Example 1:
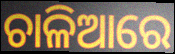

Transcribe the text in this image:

ଚାଳିଆରେ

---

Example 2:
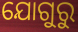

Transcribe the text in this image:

ଯୋଗୁରୁ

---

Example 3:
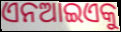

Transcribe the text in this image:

ଏନଆଇଏକୁ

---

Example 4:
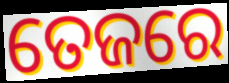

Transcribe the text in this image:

ତେଜରେ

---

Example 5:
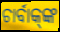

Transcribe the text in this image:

ଚାର୍ବାକ୍‌ଙ୍କ